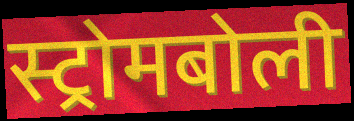
स्ट्रोमबोली